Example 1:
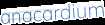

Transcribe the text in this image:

anacardium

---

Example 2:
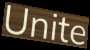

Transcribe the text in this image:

Unite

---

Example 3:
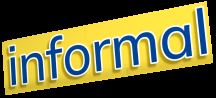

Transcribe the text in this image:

informal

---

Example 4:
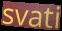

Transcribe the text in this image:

svati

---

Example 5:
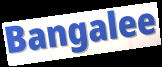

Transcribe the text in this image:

Bangalee